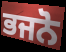
ਭਜਨੋ